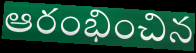
ఆరంభించిన